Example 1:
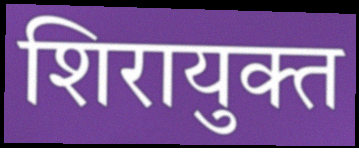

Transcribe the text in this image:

शिरायुक्त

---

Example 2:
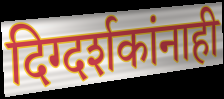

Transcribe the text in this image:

दिग्दर्शकांनाही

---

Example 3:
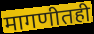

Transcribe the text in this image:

मागणीतही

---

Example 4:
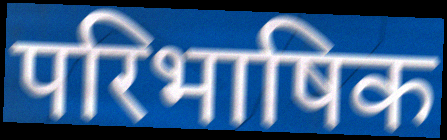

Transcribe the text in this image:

परिभाषिक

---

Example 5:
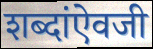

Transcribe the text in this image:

शब्दांऐवजी